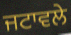
ਜਟਾਵਲੇ